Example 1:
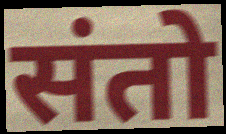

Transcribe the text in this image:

संतो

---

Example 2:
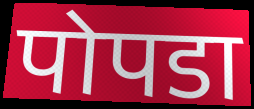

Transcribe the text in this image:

पोपडा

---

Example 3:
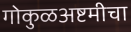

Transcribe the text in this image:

गोकुळअष्टमीचा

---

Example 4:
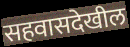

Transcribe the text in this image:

सहवासदेखील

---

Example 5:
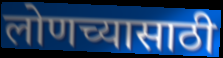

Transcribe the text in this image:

लोणच्यासाठी